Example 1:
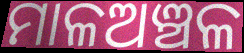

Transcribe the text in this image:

ମାଳଅଞ୍ଚଳ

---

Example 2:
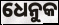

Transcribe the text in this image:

ଧେନୁକ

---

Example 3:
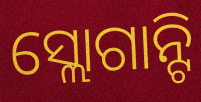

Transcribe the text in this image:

ସ୍ଲୋଗାନ୍ଟି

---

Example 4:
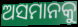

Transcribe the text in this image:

ଅସମାନକୁ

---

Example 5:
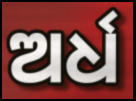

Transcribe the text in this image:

ଅର୍ଧ